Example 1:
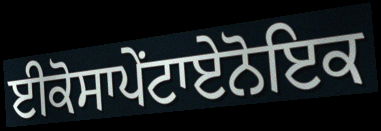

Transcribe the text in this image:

ਈਕੋਸਾਪੇਂਟਾਏਨੋਇਕ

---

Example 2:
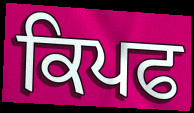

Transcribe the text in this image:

ਕਿਪਫ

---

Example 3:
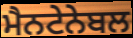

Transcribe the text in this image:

ਮੈਨਟੇਨੇਬਲ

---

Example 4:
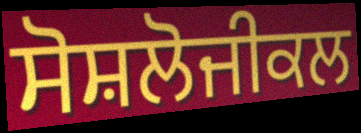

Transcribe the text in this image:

ਸੋਸ਼ਲੋਜੀਕਲ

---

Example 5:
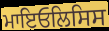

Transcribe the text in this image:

ਮਾਇਓਲਿਸਿਸ